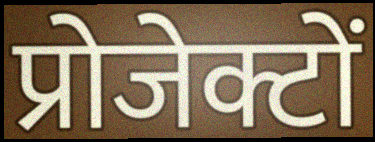
प्रोजेक्टों